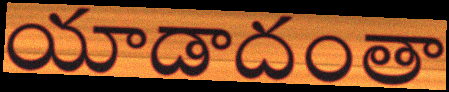
యాడాదంతా